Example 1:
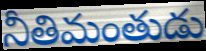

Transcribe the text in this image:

నీతిమంతుడు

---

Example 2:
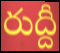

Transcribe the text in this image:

రుద్దీ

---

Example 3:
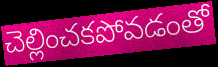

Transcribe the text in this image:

చెల్లించకపోవడంతో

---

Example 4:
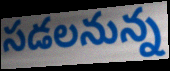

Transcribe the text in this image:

సడలనున్న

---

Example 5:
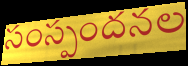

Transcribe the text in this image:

సంస్పందనల